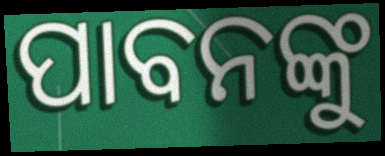
ପାବନଙ୍କୁ